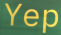
Yep